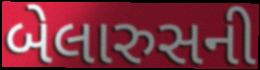
બેલારુસની